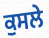
ਕੁਸਲੇ